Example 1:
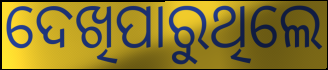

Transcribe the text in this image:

ଦେଖିପାରୁଥିଲେ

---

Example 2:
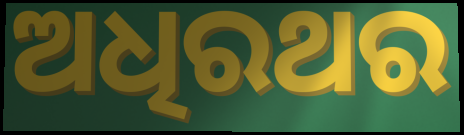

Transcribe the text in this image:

ଅଧିରଥର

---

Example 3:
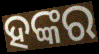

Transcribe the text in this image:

ହଙ୍କର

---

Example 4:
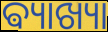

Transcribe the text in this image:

ଵ୍ୟାଖ୍ୟା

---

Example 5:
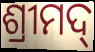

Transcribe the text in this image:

ଶ୍ରୀମଦ୍